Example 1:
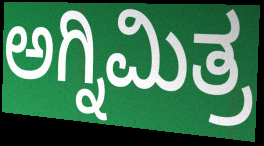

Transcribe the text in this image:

ಅಗ್ನಿಮಿತ್ರ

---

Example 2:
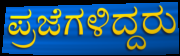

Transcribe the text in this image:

ಪ್ರಜೆಗಳಿದ್ದರು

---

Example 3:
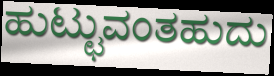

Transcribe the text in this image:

ಹುಟ್ಟುವಂತಹುದು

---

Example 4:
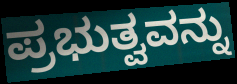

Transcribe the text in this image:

ಪ್ರಭುತ್ವವನ್ನು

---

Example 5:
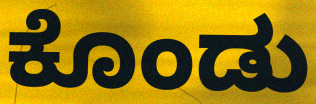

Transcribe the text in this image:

ಕೊಂಡು